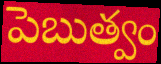
పెబుత్వం